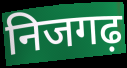
निजगढ़